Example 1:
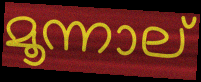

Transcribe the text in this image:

മൂന്നാല്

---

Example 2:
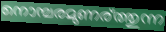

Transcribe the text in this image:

നൊമ്പരമുണര്ത്തുന്ന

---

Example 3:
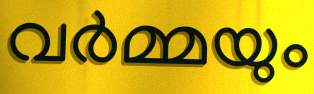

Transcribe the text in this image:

വർമ്മയും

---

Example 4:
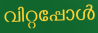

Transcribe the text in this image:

വിറ്റപ്പോൾ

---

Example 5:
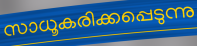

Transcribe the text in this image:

സാധൂകരിക്കപ്പെടുന്നു